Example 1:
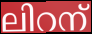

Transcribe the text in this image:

ലിറന്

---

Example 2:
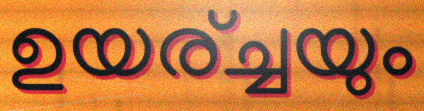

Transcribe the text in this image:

ഉയര്ച്ചയും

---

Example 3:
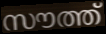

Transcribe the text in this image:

സൗത്ത്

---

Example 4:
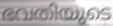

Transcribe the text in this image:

ഭവതിയുടെ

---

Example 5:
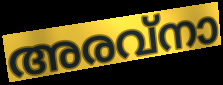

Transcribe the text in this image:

അരവ്നാ